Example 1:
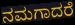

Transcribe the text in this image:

ನಮಗಾದರೆ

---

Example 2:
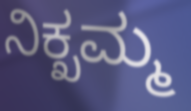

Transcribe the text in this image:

ನಿಕ್ಖಮ್ಮ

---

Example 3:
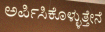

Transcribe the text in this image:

ಅರ್ಪಿಸಿಕೊಳ್ಳುತ್ತೇನೆ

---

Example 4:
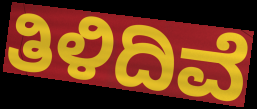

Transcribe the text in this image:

ತಿಳಿದಿವೆ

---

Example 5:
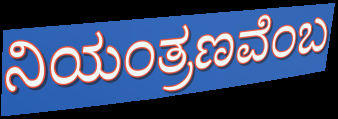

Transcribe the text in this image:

ನಿಯಂತ್ರಣವೆಂಬ